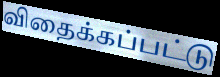
விதைக்கப்பட்டு